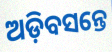
ଅଡ଼ିବସନ୍ତେ